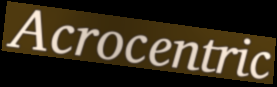
Acrocentric